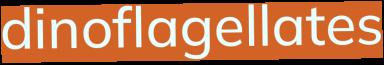
dinoflagellates